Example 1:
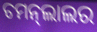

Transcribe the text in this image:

ଚମନ୍‍ଲାଲର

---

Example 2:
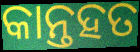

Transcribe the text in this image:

କାନ୍ତହତ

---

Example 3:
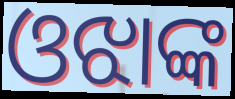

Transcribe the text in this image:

ଓଝାଙ୍କ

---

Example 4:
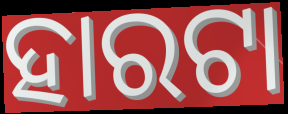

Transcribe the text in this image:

ହାରଟା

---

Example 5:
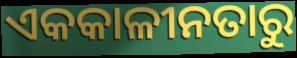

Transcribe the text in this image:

ଏକକାଳୀନତାରୁ